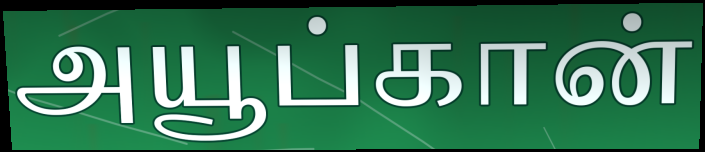
அயூப்கான்